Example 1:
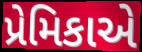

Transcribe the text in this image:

પ્રેમિકાએ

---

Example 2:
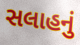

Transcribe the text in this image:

સલાહનું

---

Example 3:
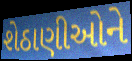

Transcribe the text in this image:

શેઠાણીઓને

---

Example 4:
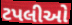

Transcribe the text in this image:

ટપલીઓ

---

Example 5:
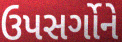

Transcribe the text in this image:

ઉપસર્ગોને